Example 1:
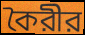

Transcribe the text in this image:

কৈরীর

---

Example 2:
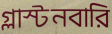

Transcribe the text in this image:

গ্লাস্টনবারি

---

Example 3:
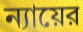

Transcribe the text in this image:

ন্যায়ের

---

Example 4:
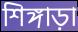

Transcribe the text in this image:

শিঙ্গাড়া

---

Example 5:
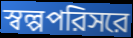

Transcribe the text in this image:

স্বল্পপরিসরে